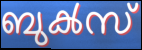
ബുൿസ്